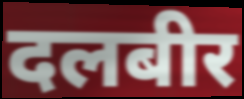
दलबीर